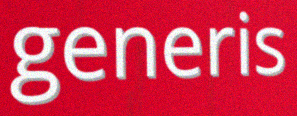
generis